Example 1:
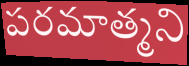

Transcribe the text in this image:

పరమాత్మని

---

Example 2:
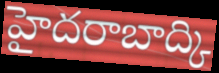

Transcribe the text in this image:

హైదరాబాద్కి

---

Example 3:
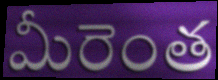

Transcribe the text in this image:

మీరెంత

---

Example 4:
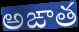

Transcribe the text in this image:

అఙాత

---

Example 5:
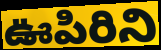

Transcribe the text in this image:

ఊపిరిని